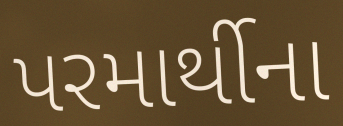
પરમાર્થીના